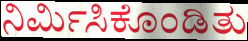
ನಿರ್ಮಿಸಿಕೊಂಡಿತು